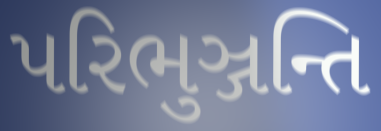
પરિભુઞ્જન્તિ